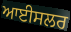
ਆਈਸਲਰ